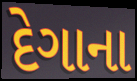
દેગાના